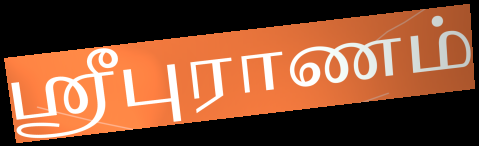
ஸ்ரீபுராணம்